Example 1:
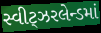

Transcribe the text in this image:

સ્વીટ્ઝરલેન્ડમાં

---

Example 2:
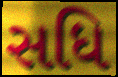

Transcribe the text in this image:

સધિ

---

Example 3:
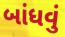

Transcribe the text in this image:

બાંધવું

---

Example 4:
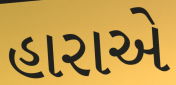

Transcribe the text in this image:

હારાએ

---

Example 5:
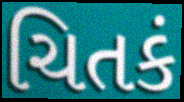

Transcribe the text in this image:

ચિતકં